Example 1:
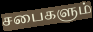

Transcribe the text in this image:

சபைகளும்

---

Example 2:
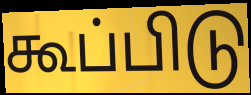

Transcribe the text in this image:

கூப்பிடு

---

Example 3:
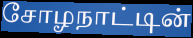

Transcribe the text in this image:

சோழநாட்டின்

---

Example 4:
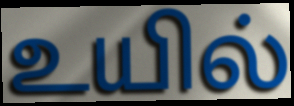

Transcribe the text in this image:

உயில்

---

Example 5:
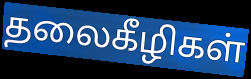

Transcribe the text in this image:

தலைகீழிகள்